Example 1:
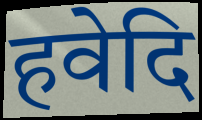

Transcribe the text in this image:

हवेदि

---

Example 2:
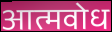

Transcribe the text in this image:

आत्मवोध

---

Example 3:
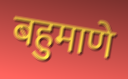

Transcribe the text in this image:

बहुमाणे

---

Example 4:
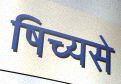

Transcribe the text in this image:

षिच्यसे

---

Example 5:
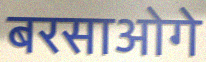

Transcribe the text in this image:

बरसाओगे